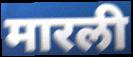
मारली